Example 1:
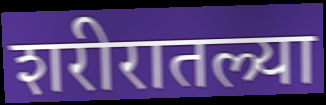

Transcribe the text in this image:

शरीरातल्या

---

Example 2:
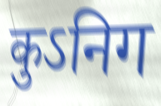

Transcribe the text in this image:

कुऽनिग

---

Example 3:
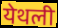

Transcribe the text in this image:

येथली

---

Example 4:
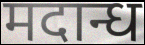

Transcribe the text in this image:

मदान्ध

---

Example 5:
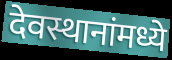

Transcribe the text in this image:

देवस्थानांमध्ये